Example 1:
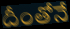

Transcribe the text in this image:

దీంతోనే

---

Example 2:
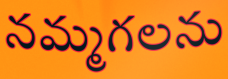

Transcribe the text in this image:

నమ్మగలను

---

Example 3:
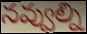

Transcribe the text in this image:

నవ్వుల్ని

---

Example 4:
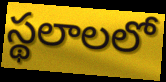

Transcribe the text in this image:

స్థలాలలో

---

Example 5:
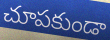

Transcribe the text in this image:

చూపకుండా